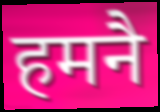
हमनै